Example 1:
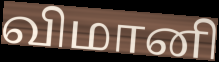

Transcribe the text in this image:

விமானி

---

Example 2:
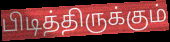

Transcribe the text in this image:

பிடித்திருக்கும்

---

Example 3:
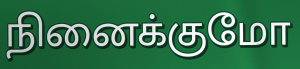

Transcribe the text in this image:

நினைக்குமோ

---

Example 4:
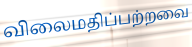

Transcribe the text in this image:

விலைமதிப்பற்றவை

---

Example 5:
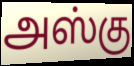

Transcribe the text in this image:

அஸ்கு